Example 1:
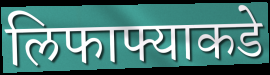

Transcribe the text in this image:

लिफाफ्याकडे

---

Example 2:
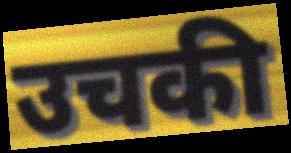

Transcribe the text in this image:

उचकी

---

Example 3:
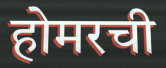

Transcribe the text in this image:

होमरची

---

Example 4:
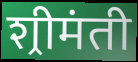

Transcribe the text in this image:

श्रीमंती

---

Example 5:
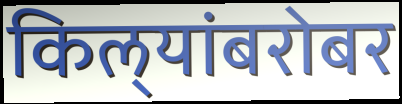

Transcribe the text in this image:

किल्यांबरोबर